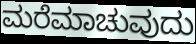
ಮರೆಮಾಚುವುದು